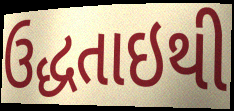
ઉદ્ધતાઇથી